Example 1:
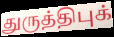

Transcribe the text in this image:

துருத்திபுக்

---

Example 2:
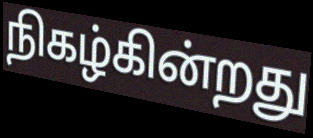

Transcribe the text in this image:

நிகழ்கின்றது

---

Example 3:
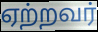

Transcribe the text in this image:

ஏற்றவர்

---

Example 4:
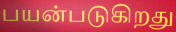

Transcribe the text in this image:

பயன்படுகிறது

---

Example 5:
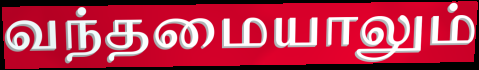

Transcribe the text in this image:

வந்தமையாலும்